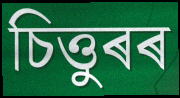
চিত্তুৰৰ